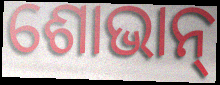
ଶୋଭାନ୍